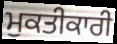
ਮੁਕਤੀਕਾਰੀ